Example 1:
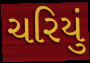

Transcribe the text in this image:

ચરિયું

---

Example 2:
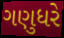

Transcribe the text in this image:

ગણુધરે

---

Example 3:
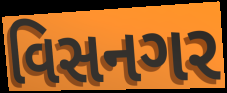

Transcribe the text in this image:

વિસનગર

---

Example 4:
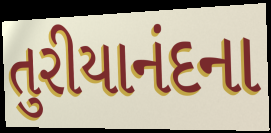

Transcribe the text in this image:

તુરીયાનંદના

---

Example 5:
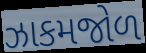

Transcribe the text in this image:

ઝાકમજોળ